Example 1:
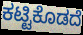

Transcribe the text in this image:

ಕಟ್ಟಿಕೊಡದೆ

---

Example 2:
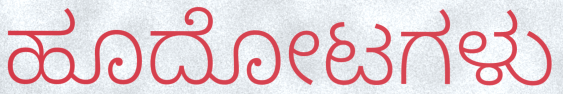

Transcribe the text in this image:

ಹೂದೋಟಗಳು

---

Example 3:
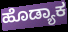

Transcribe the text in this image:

ಹೊಡ್ಯಾಕ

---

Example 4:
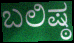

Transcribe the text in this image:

ಬಲಿಷ್ಠ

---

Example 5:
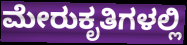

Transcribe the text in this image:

ಮೇರುಕೃತಿಗಳಲ್ಲಿ